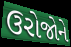
ઉરોજોને